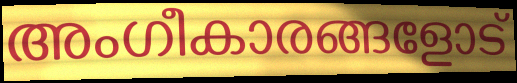
അംഗീകാരങ്ങളോട്